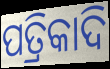
ପତ୍ରିକାଦି